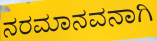
ನರಮಾನವನಾಗಿ